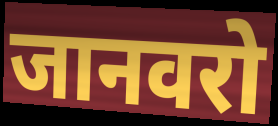
जानवरो